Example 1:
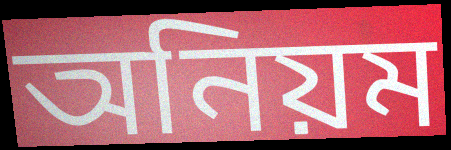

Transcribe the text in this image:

অনিয়ম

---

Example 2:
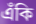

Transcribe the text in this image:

এঁকি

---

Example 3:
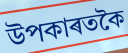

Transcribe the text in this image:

উপকাৰতকৈ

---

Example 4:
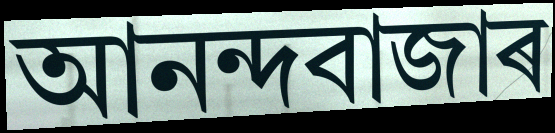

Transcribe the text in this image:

আনন্দবাজাৰ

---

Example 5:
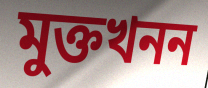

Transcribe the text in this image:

মুক্তখনন